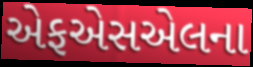
એફએસએલના